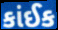
કાંઈક